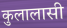
कुलालासी